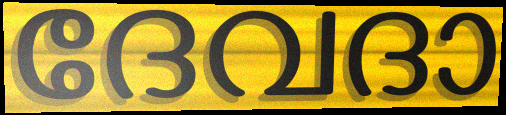
ദേവദാ